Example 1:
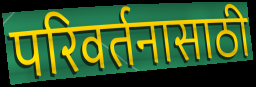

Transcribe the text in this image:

परिवर्तनासाठी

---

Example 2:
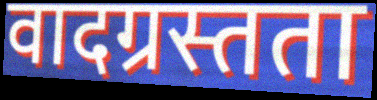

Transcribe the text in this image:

वादग्रस्तता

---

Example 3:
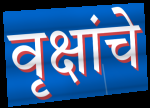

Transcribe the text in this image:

वृक्षांचे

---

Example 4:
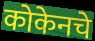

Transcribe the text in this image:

कोकेनचे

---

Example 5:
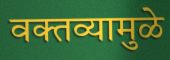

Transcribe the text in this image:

वक्तव्यामुळे